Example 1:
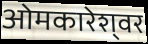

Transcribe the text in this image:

ओमकारेश्वर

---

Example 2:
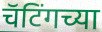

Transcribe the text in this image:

चॅटिंगच्या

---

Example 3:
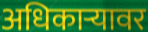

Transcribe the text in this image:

अधिकार्‍यावर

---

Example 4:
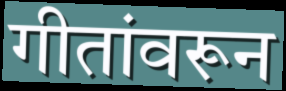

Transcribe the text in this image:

गीतांवरून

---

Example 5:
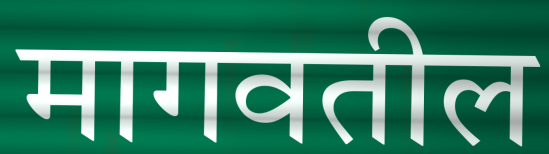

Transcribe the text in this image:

मागवतील